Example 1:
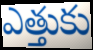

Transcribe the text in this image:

ఎత్తుకు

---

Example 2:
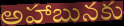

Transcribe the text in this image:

అహాబునకు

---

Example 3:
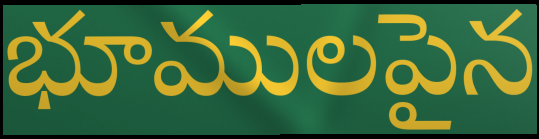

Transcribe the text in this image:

భూములపైన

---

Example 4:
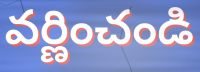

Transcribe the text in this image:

వర్ణించండి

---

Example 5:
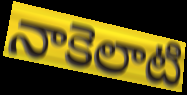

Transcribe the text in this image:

నాకెలాటి